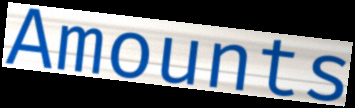
Amounts